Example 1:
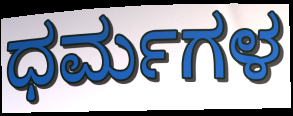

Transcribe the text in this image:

ಧರ್ಮಗಳ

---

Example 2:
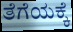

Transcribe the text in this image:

ತೆಗೆಯಕ್ಕೆ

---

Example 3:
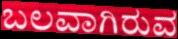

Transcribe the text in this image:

ಬಲವಾಗಿರುವ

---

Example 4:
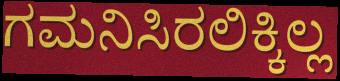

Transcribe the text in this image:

ಗಮನಿಸಿರಲಿಕ್ಕಿಲ್ಲ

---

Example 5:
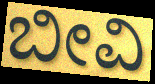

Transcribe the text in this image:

ಬೀವಿ